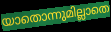
യാതൊന്നുമില്ലാതെ